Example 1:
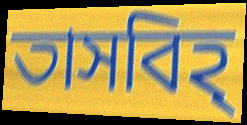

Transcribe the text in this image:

তাসবিহ্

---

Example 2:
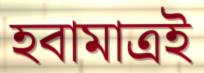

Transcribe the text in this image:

হবামাত্রই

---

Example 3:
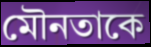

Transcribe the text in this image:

মৌনতাকে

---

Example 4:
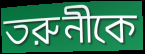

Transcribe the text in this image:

তরুনীকে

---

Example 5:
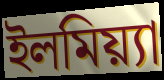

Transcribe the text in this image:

ইলমিয়্যা